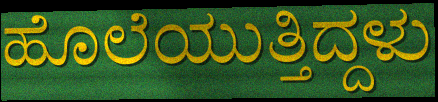
ಹೊಲೆಯುತ್ತಿದ್ದಳು